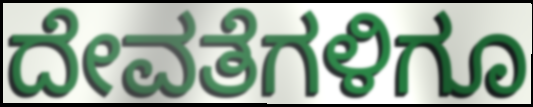
ದೇವತೆಗಳಿಗೂ